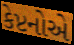
કેપ્ટનોએ